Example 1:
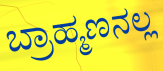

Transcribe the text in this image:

ಬ್ರಾಹ್ಮಣನಲ್ಲ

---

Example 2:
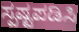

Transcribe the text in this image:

ಸ್ಪಷ್ಟಪಡಿಸಿ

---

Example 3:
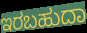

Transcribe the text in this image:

ಇರಬಹುದಾ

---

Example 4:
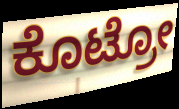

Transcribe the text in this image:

ಕೊಟ್ರೋ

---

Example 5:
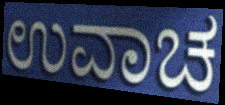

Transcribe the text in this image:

ಉವಾಚ